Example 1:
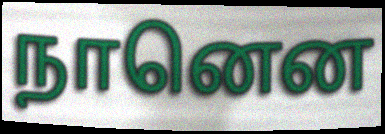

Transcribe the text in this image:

நானென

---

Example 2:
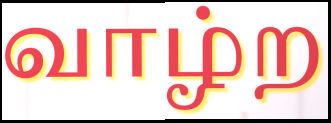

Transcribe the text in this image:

வாழ்ற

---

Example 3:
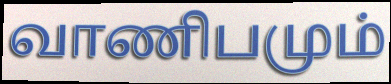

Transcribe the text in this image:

வாணிபமும்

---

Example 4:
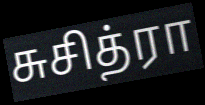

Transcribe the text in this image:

சுசித்ரா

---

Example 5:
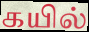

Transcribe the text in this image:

கயில்